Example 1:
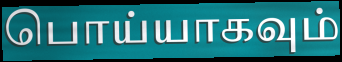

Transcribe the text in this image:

பொய்யாகவும்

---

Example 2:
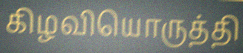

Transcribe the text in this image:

கிழவியொருத்தி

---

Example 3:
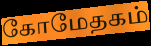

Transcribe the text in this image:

கோமேதகம்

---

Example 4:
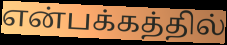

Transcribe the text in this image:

என்பக்கத்தில்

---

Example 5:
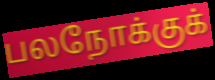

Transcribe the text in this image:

பலநோக்குக்